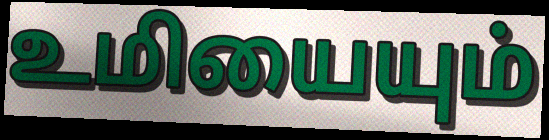
உமியையும்